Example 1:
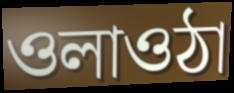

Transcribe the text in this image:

ওলাওঠা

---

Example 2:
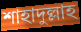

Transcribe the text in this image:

শাহাদুল্লাহ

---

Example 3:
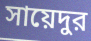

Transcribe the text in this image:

সায়েদুর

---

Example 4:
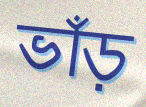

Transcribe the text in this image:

ভাঁড়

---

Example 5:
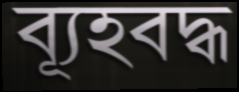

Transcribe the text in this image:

ব্যূহবদ্ধ